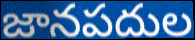
జానపదుల